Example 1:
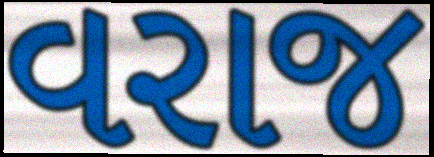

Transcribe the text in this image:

વરાજ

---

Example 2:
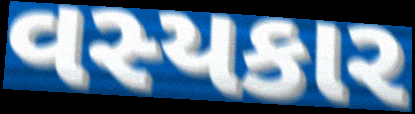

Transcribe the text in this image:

વસ્યકાર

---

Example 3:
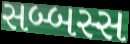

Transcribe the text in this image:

સબ્બસ્સ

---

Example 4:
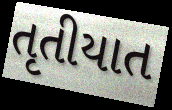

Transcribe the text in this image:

તૃતીયાત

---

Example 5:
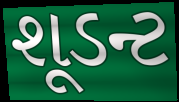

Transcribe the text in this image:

શૂડન્ટ